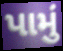
પામું